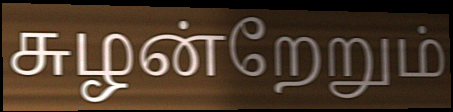
சுழன்றேறும்